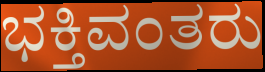
ಭಕ್ತಿವಂತರು